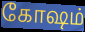
கோஷம்